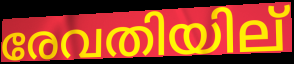
രേവതിയില്